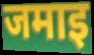
जमाइ